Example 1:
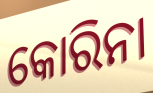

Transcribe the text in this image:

କୋରିନା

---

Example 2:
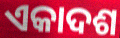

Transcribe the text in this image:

ଏକାଦଶ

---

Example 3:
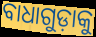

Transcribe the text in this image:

ବାଧାଗୁଡ଼ାକୁ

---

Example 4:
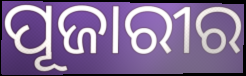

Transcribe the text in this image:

ପୂଜାରୀର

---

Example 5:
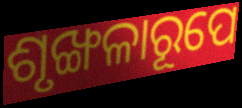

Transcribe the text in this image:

ଶୃଙ୍ଖଳାରୂପେ